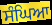
ਸੰਘਿਆ